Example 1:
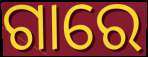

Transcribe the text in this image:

ଗାରେ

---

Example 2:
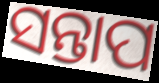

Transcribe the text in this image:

ସନ୍ତାପ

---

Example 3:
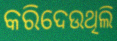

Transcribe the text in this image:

କରିଦେଉଥିଲି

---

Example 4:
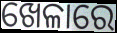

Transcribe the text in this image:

ଖେଳାରେ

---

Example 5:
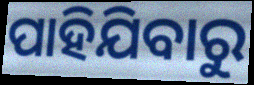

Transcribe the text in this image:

ପାହିଯିବାରୁ